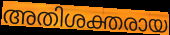
അതിശക്തരായ